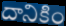
దానికిం